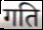
गति